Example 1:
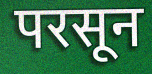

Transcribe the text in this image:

परसून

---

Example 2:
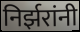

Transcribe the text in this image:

निर्झरांनी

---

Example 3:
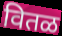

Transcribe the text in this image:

वितळ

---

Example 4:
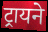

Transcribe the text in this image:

ट्रायने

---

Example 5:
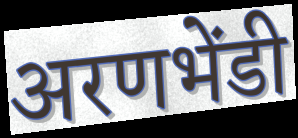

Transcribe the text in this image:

अरणभेंडी